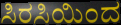
ಸಿರಸಿಯಿಂದ